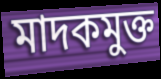
মাদকমুক্ত